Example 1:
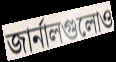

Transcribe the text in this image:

জার্নালগুলোও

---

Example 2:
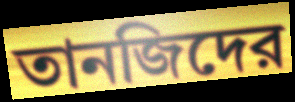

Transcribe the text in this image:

তানজিদের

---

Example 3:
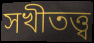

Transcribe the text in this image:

সখীতত্ত্ব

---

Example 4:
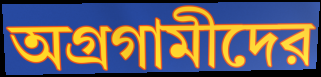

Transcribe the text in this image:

অগ্রগামীদের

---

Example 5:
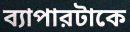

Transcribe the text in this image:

ব্যাপারটাকে